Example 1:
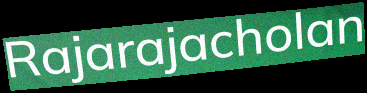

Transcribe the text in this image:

Rajarajacholan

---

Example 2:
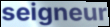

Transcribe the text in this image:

seigneur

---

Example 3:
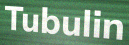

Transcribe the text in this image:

Tubulin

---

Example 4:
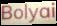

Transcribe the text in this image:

Bolyai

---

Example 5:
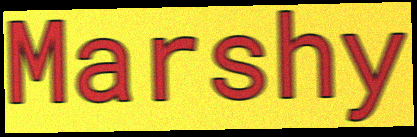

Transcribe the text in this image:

Marshy